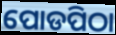
ପୋଡପିଠା